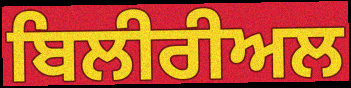
ਬਿਲੀਰੀਅਲ